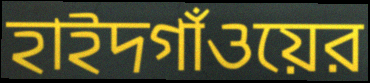
হাইদগাঁওয়ের